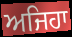
ਅਜਿਹਾ